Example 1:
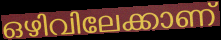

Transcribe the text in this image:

ഒഴിവിലേക്കാണ്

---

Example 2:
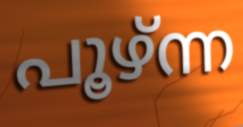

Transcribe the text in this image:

പൂഴ്ന്ന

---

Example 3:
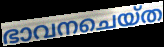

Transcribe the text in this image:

ഭാവനചെയ്ത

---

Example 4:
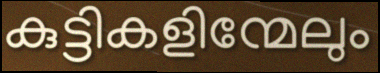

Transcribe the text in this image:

കുട്ടികളിന്മേലും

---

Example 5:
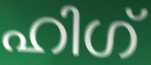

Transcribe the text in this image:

ഹിഗ്